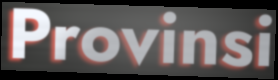
Provinsi